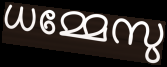
ധമ്മേസു